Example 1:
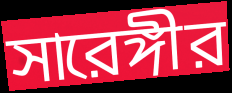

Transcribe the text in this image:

সারেঙ্গীর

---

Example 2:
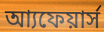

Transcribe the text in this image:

আ্যফেয়ার্স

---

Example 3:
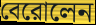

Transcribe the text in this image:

বেরোলেন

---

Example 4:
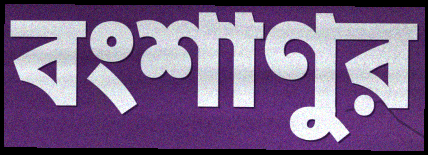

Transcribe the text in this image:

বংশাণুর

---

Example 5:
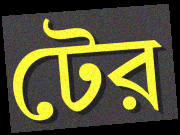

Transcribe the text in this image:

টের